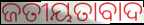
ଜତୀୟତାବାଦ